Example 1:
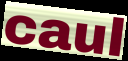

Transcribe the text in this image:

caul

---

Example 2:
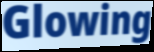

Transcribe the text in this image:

Glowing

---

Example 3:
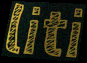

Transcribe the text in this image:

liti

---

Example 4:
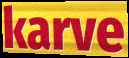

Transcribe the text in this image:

karve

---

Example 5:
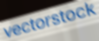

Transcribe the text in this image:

vectorstock